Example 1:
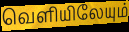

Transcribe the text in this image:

வெளியிலேயும்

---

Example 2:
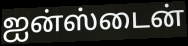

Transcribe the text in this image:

ஐன்ஸ்டைன்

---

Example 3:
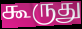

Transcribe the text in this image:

கூருது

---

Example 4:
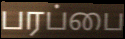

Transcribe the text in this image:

பரப்பை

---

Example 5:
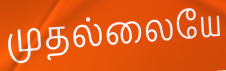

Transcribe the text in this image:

முதல்லையே